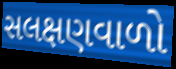
સલક્ષણવાળો